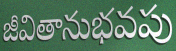
జీవితానుభవపు